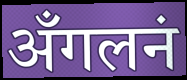
अँगलनं